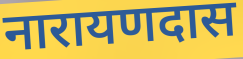
नारायणदास